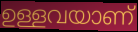
ഉള്ളവയാണ്